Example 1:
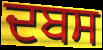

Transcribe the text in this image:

ਦਬਸ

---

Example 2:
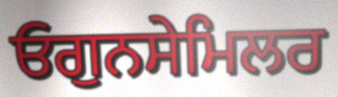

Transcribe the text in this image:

ਓਗੁਨਸੇਮਿਲਰ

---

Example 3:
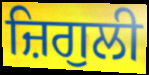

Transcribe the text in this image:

ਜ਼ਿਗੁਲੀ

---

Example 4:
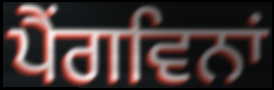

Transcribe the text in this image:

ਪੈਂਗਵਿਨਾਂ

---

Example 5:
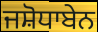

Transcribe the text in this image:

ਜਸ਼ੋਧਾਬੇਨ